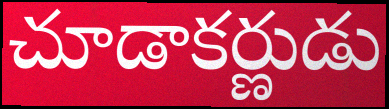
చూడాకర్ణుడు